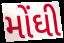
મોંઘી